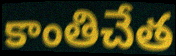
కాంతిచేత